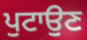
ਪੁਟਾਉਣ